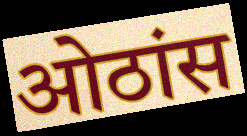
ओठांस